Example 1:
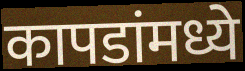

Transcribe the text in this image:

कापडांमध्ये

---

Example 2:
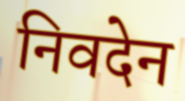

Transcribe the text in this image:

निवदेन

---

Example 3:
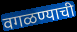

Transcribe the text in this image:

वगळण्याची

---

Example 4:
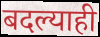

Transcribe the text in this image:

बदल्याही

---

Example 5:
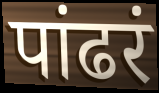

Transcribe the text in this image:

पांढरं